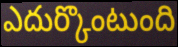
ఎదుర్కొంటుంది